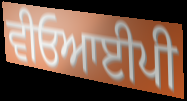
ਵੀਓਆਈਪੀ